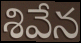
శివేన